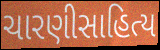
ચારણીસાહિત્ય